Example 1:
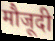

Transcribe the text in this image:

मौजूदी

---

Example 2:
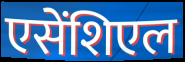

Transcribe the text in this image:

एसेंशिएल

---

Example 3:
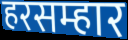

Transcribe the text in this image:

हरसम्हार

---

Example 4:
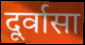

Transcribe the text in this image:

दूर्वासा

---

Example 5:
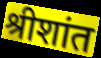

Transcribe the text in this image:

श्रीशांत